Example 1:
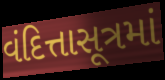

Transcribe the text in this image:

વંદિત્તાસૂત્રમાં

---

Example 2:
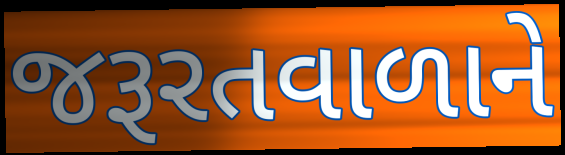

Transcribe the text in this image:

જરૂરતવાળાને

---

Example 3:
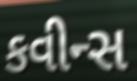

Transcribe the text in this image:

કવીન્સ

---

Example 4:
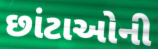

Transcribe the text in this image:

છાંટાઓની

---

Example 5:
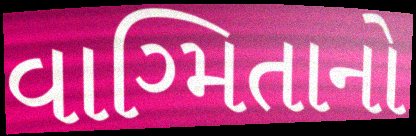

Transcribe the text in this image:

વાગ્મિતાનો